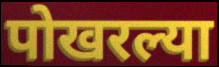
पोखरल्या